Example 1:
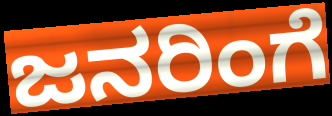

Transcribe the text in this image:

ಜನರಿಂಗೆ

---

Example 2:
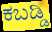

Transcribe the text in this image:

ಕಬಡ್ಡಿ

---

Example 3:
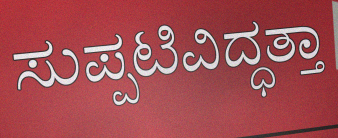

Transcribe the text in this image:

ಸುಪ್ಪಟಿವಿದ್ಧತ್ತಾ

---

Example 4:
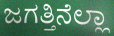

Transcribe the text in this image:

ಜಗತ್ತಿನೆಲ್ಲಾ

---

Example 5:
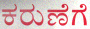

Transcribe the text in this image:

ಕರುಣೆಗೆ